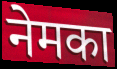
नेमका